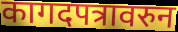
कागदपत्रावरुन